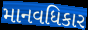
માનવધિકાર